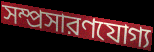
সম্প্রসারণযোগ্য